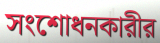
সংশোধনকারীর